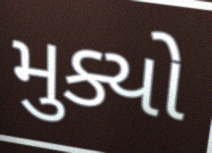
મુક્યો